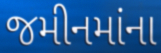
જમીનમાંના